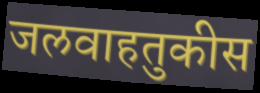
जलवाहतुकीस